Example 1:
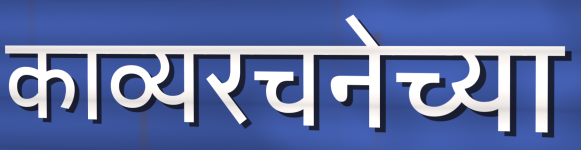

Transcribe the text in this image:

काव्यरचनेच्या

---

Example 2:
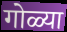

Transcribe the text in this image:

गोळ्या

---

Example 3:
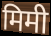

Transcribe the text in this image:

मिमी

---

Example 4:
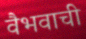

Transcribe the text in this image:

वैभवाची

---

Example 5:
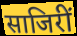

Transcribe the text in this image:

साजिरीं